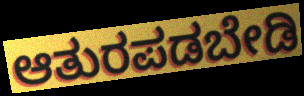
ಆತುರಪಡಬೇಡಿ